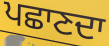
ਪਛਾਣਦਾ